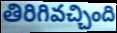
తిరిగివచ్చింది